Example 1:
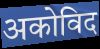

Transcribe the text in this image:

अकोविद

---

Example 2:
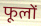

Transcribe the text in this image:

फूलों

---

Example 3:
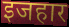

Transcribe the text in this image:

इजहार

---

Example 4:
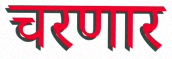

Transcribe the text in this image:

चरणार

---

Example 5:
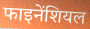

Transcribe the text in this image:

फाइनेंशियल